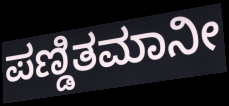
ಪಣ್ಡಿತಮಾನೀ